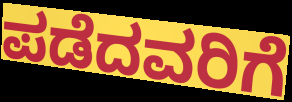
ಪಡೆದವರಿಗೆ